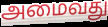
அமைவது